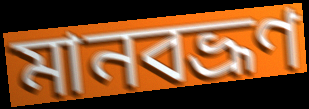
মানবভ্রূণ